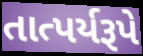
તાત્પર્યરૂપે